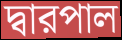
দ্বারপাল